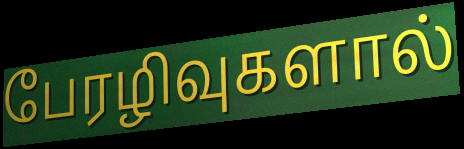
பேரழிவுகளால்